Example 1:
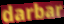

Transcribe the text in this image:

darbar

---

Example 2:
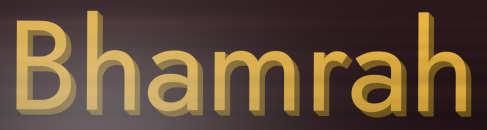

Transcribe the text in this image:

Bhamrah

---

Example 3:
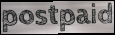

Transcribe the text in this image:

postpaid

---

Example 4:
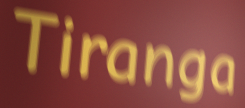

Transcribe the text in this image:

Tiranga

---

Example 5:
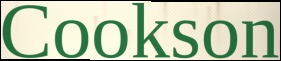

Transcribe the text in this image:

Cookson